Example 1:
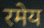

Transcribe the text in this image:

रमेय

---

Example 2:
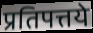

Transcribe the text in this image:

प्रतिपत्तये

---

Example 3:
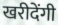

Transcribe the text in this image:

खरीदेंगी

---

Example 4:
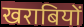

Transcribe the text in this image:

खराबियों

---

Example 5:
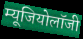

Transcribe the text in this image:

म्यूजियोलॉजी